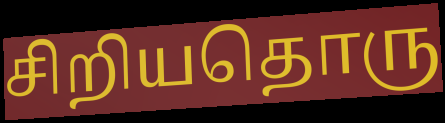
சிறியதொரு